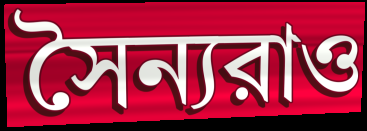
সৈন্যরাও